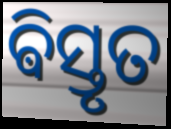
ଵିସ୍ତୃତ